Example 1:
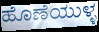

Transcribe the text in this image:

ಹೊಣೆಯುಳ್ಳ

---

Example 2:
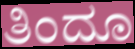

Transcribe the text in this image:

ತಿಂದೂ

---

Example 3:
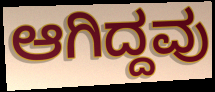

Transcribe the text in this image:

ಆಗಿದ್ದವು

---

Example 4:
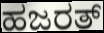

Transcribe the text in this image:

ಹಜರತ್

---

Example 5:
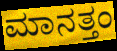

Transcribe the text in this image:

ಮಾನತ್ತಂ